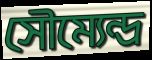
সৌম্যেন্দ্র